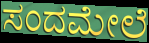
ಸಂದಮೇಲೆ